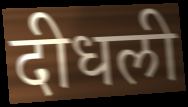
दीधली